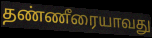
தண்ணீரையாவது